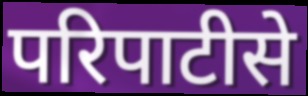
परिपाटीसे